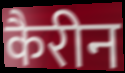
कैरीन